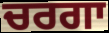
ਚਰਗਾ